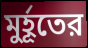
মুর্হূতের